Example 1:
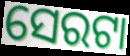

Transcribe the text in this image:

ସେରଟା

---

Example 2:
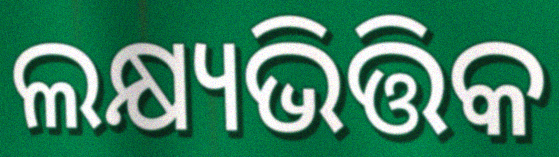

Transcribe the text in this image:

ଲକ୍ଷ୍ୟଭିତ୍ତିକ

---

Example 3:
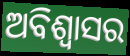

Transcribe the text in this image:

ଅବିଶ୍ବାସର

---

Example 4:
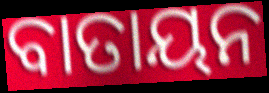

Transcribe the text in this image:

ବାତାୟନ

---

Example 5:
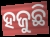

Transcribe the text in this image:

ହଜୁଛି